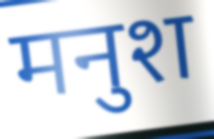
मनुश